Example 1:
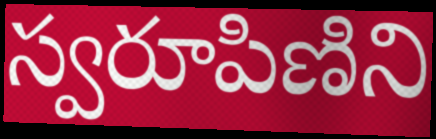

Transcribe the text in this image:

స్వరూపిణిని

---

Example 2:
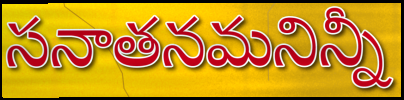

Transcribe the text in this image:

సనాతనమనిన్నీ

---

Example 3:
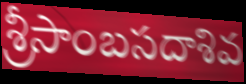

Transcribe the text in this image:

శ్రీసాంబసదాశివ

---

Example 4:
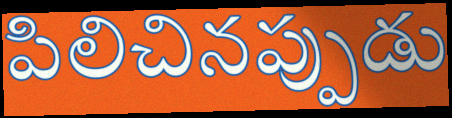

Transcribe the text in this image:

పిలిచినప్పుడు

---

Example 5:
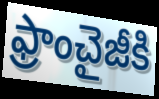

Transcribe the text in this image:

ఫ్రాంచైజీకి